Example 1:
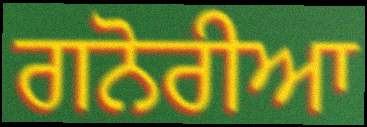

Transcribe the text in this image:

ਗਨੋਰੀਆ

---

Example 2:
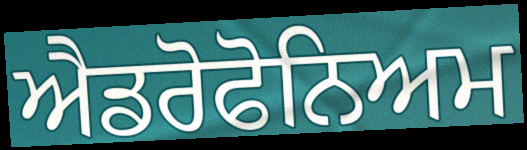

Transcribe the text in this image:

ਐਡਰੋਫੋਨਿਅਮ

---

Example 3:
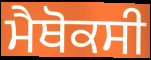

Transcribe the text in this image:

ਮੈਥੋਕਸੀ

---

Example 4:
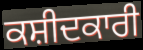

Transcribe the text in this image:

ਕਸ਼ੀਦਕਾਰੀ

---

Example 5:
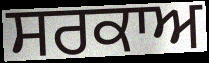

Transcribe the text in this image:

ਸਰਕਾਅ